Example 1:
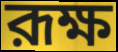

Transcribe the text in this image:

রূক্ষ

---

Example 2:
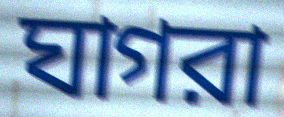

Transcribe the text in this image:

ঘাগরা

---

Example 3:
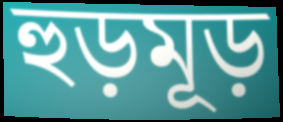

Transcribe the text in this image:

হুড়মূড়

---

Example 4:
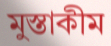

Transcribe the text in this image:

মুস্তাকীম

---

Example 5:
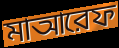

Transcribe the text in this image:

মাআরেফ